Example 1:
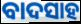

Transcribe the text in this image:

ବାଦସାହ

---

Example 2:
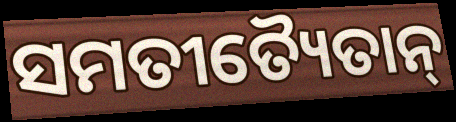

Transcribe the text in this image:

ସମତୀତ୍ୟୈତାନ୍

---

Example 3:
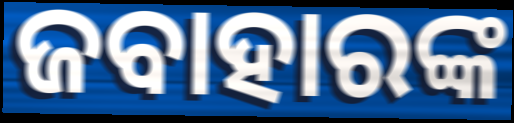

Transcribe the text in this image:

ଜବାହାରଙ୍କ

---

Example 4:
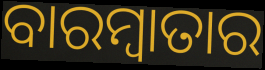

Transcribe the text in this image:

ବାରମ୍ବାତାର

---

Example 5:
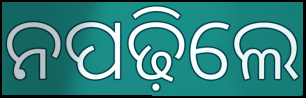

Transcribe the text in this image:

ନପଢ଼ିଲେ